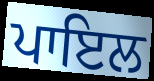
ਪਾਇਲ